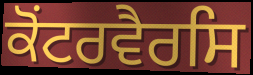
ਕੋਂਟਰਵੈਰਸਿ